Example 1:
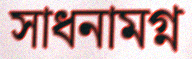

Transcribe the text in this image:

সাধনামগ্ন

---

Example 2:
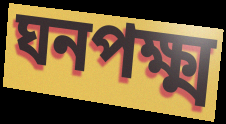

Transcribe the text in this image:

ঘনপক্ষ্ম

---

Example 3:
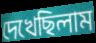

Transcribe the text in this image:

দেখেছিলাম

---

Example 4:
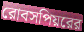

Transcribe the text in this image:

রোবসপিয়রের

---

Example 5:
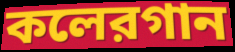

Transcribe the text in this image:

কলেরগান